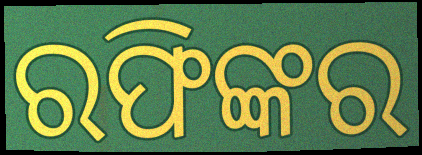
ରଫିଙ୍କର